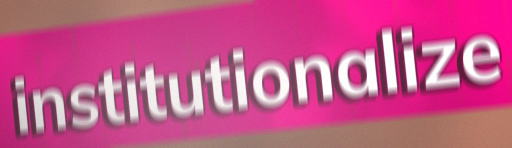
institutionalize